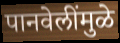
पानवेलींमुळे